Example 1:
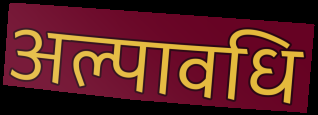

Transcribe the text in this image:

अल्पावधि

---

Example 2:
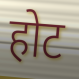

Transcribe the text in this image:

होट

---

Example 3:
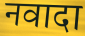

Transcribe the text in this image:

नवादा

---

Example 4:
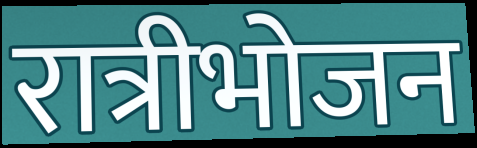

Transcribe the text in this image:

रात्रीभोजन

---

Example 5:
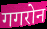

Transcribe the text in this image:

गगरोन